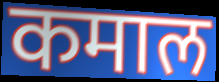
कमाल